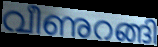
വീണുറങ്ങി